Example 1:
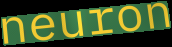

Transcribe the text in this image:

neuron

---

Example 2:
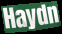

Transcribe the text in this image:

Haydn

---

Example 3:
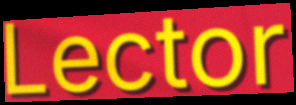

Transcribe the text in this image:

Lector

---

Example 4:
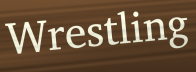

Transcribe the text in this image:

Wrestling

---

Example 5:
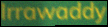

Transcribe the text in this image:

Irrawaddy